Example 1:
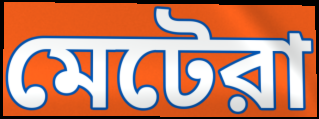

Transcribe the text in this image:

মেটেরা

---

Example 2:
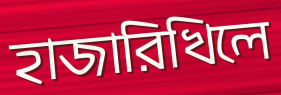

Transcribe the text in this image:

হাজারিখিলে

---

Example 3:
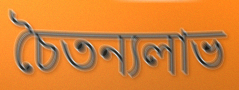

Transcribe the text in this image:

চৈতন্যলাভ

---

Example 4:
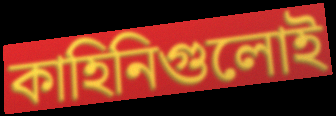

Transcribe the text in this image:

কাহিনিগুলোই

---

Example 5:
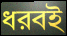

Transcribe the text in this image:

ধরবই